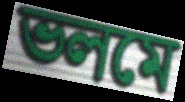
ভলমে